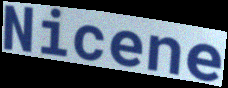
Nicene